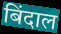
बिंदाल